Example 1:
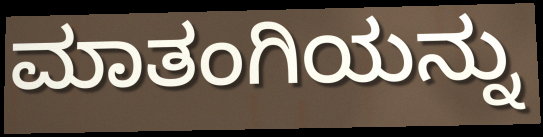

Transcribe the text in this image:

ಮಾತಂಗಿಯನ್ನು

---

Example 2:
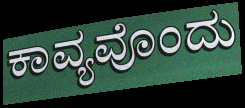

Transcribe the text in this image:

ಕಾವ್ಯವೊಂದು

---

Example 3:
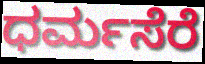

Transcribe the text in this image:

ಧರ್ಮಸೆರೆ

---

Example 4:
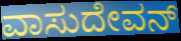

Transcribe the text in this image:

ವಾಸುದೇವನ್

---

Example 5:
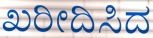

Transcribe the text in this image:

ಖರೀದಿಸಿದ